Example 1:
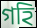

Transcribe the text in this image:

গহি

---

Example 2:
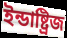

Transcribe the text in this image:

ইন্ডাষ্ট্রিজ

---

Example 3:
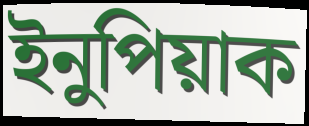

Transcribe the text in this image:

ইনুপিয়াক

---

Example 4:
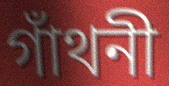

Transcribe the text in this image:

গাঁথনী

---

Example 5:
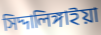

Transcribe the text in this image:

সিদ্দালিঙ্গাইয়া